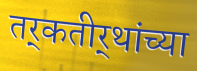
तर्कतीर्थांच्या